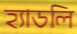
হ্যাডলি